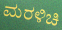
ಮರಳಿಚಿ